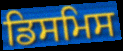
ਡਿਸਮਿਸ